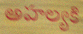
అహల్యకి